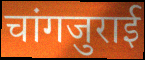
चांगजुराई